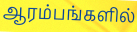
ஆரம்பங்களில்